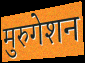
मुरुगेशन